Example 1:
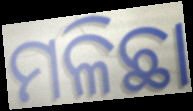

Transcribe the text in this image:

ମଳିଛା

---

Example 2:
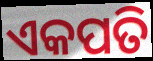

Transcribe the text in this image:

ଏକପତି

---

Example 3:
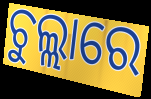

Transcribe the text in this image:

ଚୁଲ୍ଲାରେ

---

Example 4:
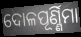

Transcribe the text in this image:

ଦୋଳପୂର୍ଣ୍ଣିମା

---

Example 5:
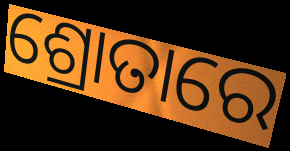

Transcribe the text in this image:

ଶ୍ରୋତାରେ